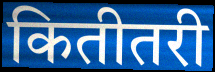
कितीतरी